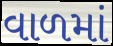
વાળમાં